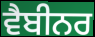
ਵੈਬੀਨਰ